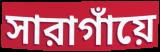
সারাগাঁয়ে